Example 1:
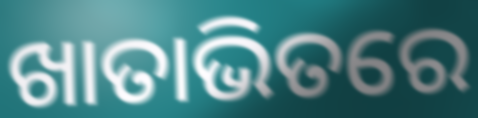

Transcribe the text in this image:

ଖାତାଭିତରେ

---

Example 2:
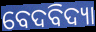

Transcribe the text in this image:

ବେଦବିଦ୍ୟା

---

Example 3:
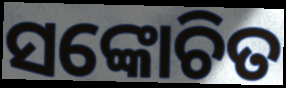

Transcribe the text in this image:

ସଙ୍କୋଚିତ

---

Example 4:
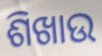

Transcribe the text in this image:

ଶିଖାଉ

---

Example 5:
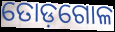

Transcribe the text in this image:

ତୋଡ଼ଗୋଳ